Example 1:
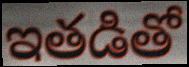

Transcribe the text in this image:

ఇతడితో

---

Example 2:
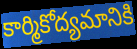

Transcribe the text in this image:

కార్మికోద్యమానికి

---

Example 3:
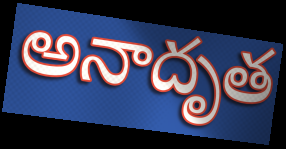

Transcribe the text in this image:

అనాదృత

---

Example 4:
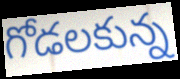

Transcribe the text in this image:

గోడలకున్న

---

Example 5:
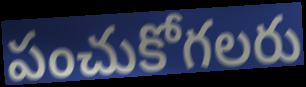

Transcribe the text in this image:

పంచుకోగలరు